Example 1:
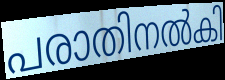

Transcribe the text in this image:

പരാതിനൽകി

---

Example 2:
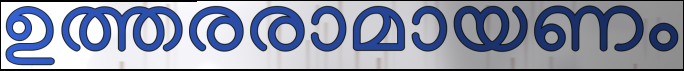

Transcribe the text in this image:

ഉത്തരരാമായണം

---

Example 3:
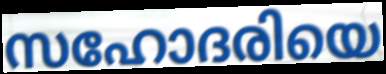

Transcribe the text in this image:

സഹോദരിയെ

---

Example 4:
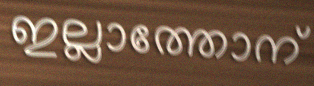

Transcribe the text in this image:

ഇല്ലാത്തോന്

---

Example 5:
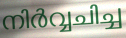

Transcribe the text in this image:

നിർവ്വചിച്ച